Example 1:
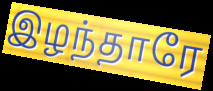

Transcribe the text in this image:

இழந்தாரே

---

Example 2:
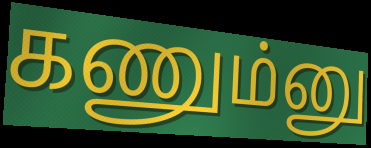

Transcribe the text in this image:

கணும்னு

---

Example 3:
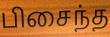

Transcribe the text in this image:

பிசைந்த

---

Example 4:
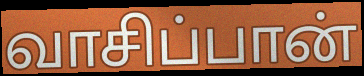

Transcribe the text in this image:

வாசிப்பான்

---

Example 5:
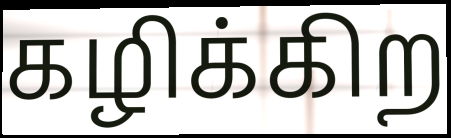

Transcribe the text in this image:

கழிக்கிற